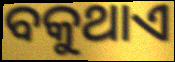
ବକୁଥାଏ